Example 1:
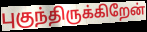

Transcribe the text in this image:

புகுந்திருக்கிறேன்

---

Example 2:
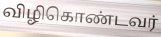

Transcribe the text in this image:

விழிகொண்டவர்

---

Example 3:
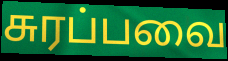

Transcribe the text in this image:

சுரப்பவை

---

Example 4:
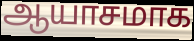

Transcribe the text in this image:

ஆயாசமாக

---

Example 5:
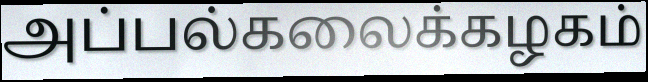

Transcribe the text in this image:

அப்பல்கலைக்கழகம்